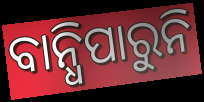
ବାନ୍ଧିପାରୁନି